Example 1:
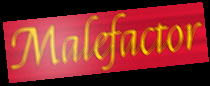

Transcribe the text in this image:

Malefactor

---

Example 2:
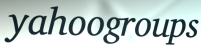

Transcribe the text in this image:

yahoogroups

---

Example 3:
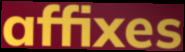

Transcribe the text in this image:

affixes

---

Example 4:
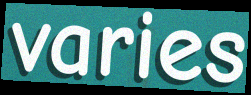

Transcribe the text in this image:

varies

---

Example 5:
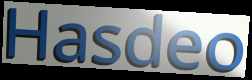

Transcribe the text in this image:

Hasdeo